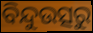
ବିନ୍ଦୁଉତ୍ସରୁ